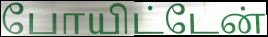
போயிட்டேன்